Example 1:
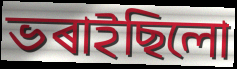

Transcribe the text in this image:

ভৰাইছিলো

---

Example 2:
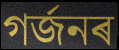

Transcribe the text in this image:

গৰ্জনৰ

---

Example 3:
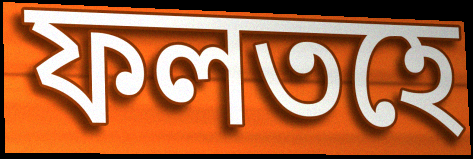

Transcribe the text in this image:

ফলতহে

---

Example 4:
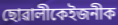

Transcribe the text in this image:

ছোৱালীকেইজনীক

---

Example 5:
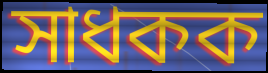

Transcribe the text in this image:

সাধকক